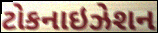
ટોકનાઇઝેશન